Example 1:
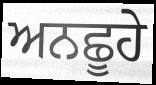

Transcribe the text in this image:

ਅਨਛੂਹੇ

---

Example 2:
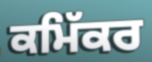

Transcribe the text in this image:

ਕਮਿੱਕਰ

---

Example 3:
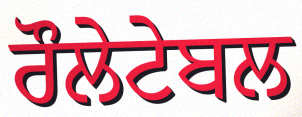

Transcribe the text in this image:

ਰੌਲੇਟੇਬਲ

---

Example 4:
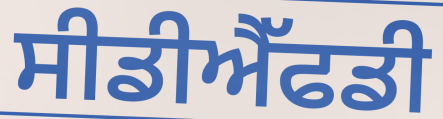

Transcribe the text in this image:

ਸੀਡੀਐੱਫਡੀ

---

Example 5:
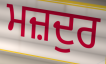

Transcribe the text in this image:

ਮਜ਼ਦੁਰ